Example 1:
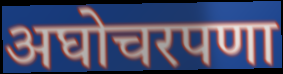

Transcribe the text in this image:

अघोचरपणा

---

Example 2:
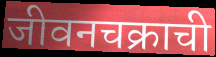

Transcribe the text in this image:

जीवनचक्राची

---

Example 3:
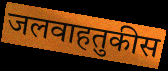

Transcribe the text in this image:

जलवाहतुकीस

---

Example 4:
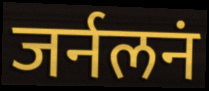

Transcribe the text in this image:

जर्नलनं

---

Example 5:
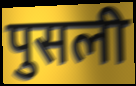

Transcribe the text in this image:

पुसली